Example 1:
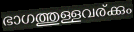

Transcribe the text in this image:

ഭാഗത്തുള്ളവര്ക്കും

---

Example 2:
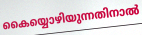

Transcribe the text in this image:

കൈയ്യൊഴിയുന്നതിനാൽ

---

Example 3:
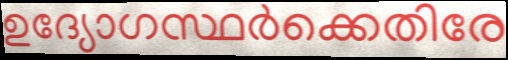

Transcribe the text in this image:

ഉദ്യോഗസ്ഥർക്കെതിരേ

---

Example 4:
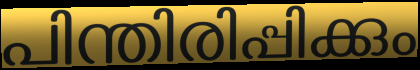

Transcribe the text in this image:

പിന്തിരിപ്പിക്കും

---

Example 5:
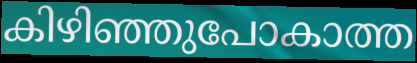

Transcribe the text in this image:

കിഴിഞ്ഞുപോകാത്ത